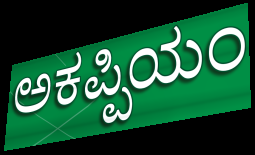
ಅಕಪ್ಪಿಯಂ